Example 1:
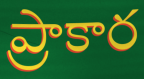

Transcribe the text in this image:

ప్రాకార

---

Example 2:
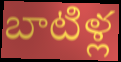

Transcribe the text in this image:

బాటిళ్ల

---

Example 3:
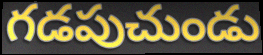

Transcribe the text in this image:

గడపుచుండు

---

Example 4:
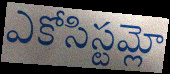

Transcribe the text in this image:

ఎకోసిస్టమ్లో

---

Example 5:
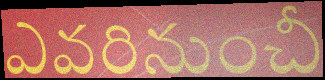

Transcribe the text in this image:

ఎవరినుంచీ